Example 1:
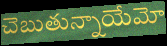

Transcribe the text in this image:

చెబుతున్నాయేమో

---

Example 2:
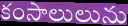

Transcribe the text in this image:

కంసాలులును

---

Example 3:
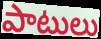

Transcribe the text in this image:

పాటులు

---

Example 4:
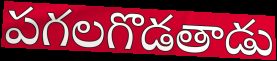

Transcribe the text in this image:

పగలగొడతాడు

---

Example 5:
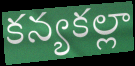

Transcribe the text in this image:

కన్యకల్లా